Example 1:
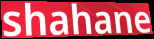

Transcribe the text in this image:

shahane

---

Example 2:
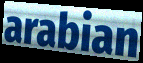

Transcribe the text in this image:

arabian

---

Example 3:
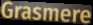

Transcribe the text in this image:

Grasmere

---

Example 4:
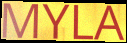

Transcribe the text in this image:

MYLA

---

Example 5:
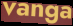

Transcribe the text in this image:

vanga